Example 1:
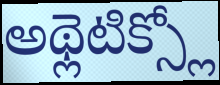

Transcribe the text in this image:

అథ్లెటిక్స్లో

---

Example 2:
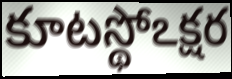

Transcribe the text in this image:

కూటస్థోఽక్షర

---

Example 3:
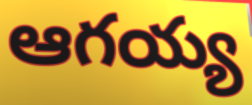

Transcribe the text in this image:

ఆగయ్య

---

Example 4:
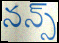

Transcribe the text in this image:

నన్స్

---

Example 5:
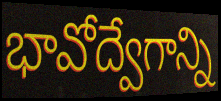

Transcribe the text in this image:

భావోద్వేగాన్ని